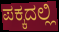
ಪಕ್ಕದಲ್ಲಿ